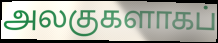
அலகுகளாகப்